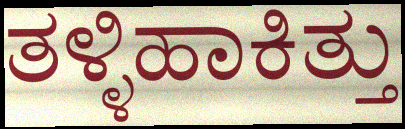
ತಳ್ಳಿಹಾಕಿತ್ತು